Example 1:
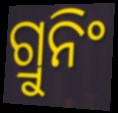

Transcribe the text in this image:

ଗ୍ରୁନିଂ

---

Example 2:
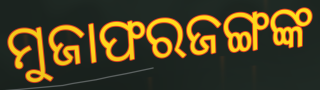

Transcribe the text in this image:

ମୁଜାଫରଜଙ୍ଗଙ୍କ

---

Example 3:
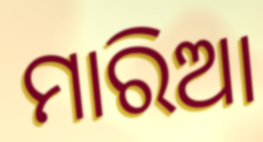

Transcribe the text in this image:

ମାରିଆ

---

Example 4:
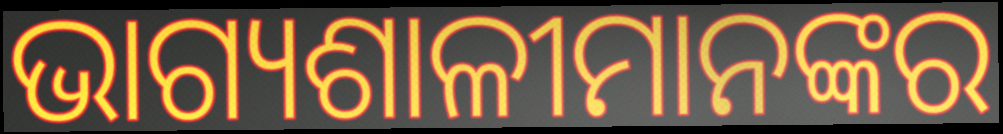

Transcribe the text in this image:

ଭାଗ୍ୟଶାଳୀମାନଙ୍କର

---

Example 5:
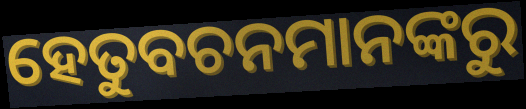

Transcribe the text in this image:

ହେତୁବଚନମାନଙ୍କରୁ